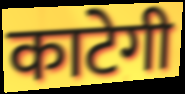
काटेगी